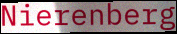
Nierenberg